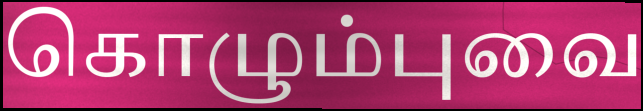
கொழும்புவை